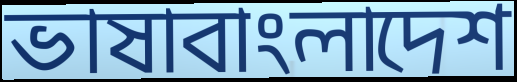
ভাষাবাংলাদেশ